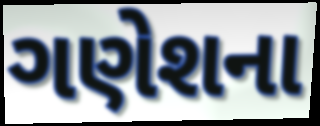
ગણેશના